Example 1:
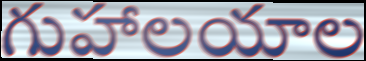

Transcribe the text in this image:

గుహాలయాల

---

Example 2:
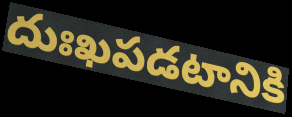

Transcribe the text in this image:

దుఃఖపడటానికి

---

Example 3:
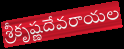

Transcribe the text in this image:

శ్రీకృష్ణదేవరాయల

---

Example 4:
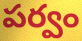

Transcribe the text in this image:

పర్వం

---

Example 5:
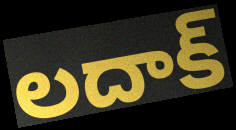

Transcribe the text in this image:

లదాక్